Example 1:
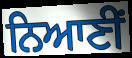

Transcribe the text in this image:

ਨਿਆਣੀਂ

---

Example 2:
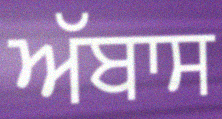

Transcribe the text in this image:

ਅੱਬਾਸ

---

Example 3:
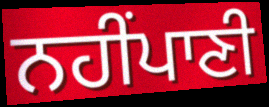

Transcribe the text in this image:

ਨਹੀਂਪਾਣੀ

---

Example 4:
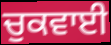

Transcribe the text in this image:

ਚੁਕਵਾਈ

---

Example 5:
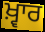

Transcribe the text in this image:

ਖ਼੍ਵਾਰ